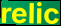
relic